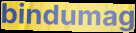
bindumag